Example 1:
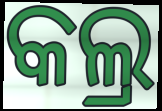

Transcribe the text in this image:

କଲ୍ର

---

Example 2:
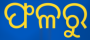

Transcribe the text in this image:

ଫଳରୁ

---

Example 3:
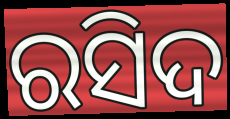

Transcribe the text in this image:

ରସିଦ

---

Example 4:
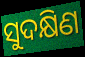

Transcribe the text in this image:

ସୁଦକ୍ଷିଣ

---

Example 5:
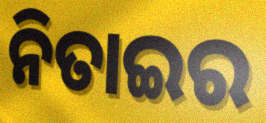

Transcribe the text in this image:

ନିତାଇର